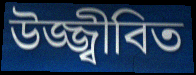
উজ্জ্বীবিত